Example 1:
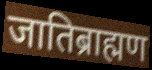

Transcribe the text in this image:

जातिब्राह्मण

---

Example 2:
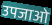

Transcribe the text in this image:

उपजाओ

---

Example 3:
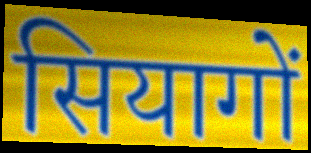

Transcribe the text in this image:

सियागों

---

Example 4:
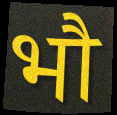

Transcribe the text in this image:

भौ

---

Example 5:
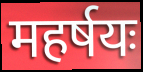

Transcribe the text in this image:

महर्षयः